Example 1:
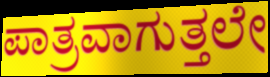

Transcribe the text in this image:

ಪಾತ್ರವಾಗುತ್ತಲೇ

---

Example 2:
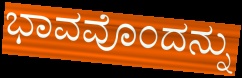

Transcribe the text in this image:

ಭಾವವೊಂದನ್ನು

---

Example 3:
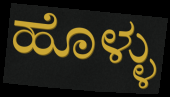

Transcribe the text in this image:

ಹೊಳ್ಳು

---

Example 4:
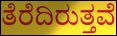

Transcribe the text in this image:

ತೆರೆದಿರುತ್ತವೆ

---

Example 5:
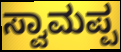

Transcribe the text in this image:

ಸ್ವಾಮಪ್ಪ